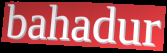
bahadur